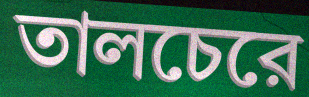
তালচেরে